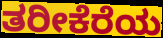
ತರೀಕೆರೆಯ